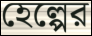
হেল্পের